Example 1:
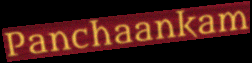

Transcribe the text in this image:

Panchaankam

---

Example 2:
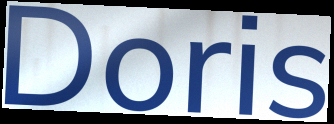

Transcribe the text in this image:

Doris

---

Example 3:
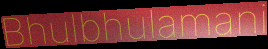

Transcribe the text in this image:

Bhulbhulamani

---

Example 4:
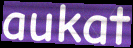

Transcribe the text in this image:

aukat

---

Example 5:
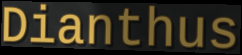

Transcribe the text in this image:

Dianthus